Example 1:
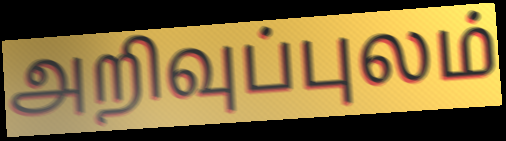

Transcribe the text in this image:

அறிவுப்புலம்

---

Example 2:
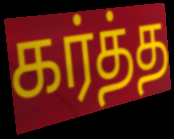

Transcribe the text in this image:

கர்த்த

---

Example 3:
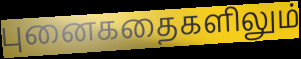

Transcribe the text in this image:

புனைகதைகளிலும்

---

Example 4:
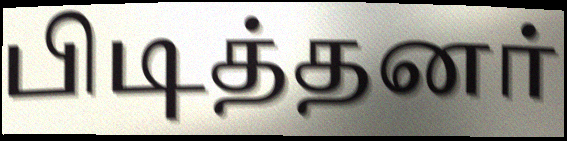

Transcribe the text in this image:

பிடித்தனர்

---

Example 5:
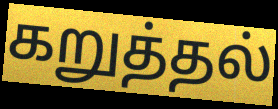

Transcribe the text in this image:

கறுத்தல்